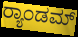
ರ್‍ಯಾಂಡಮ್